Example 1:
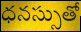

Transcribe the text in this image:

ధనస్సుతో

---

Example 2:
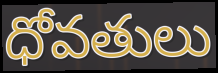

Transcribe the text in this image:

ధోవతులు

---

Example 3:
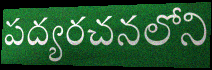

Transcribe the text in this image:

పద్యరచనలోని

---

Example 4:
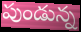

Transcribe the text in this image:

పుండున్న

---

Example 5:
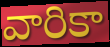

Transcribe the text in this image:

వారికా